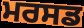
ਮਰਸਡ